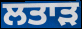
ਲਤਾੜ